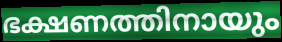
ഭക്ഷണത്തിനായും